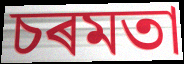
চৰমতা